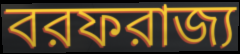
বরফরাজ্য